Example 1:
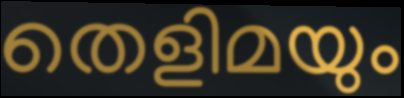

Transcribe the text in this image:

തെളിമയും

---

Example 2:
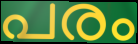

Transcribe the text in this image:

പരം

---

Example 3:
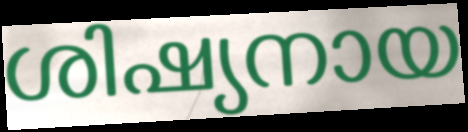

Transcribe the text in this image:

ശിഷ്യനായ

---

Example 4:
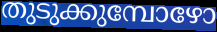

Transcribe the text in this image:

തുടുക്കുമ്പോഴോ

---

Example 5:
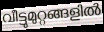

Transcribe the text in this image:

വീട്ടുമുറ്റങ്ങളിൽ